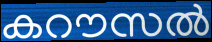
കറൗസൽ